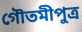
গৌতমীপুত্র